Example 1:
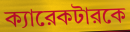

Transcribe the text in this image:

ক্যারেকটারকে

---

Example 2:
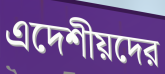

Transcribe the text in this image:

এদেশীয়দের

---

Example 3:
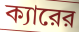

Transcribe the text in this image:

ক্যারের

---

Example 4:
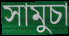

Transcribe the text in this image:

সামুচা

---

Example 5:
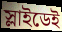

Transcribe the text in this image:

স্লাইডেই